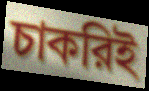
চাকরিই